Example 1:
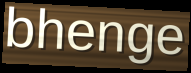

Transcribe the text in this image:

bhenge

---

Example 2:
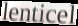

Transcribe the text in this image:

lenticel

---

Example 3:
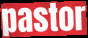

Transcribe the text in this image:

pastor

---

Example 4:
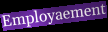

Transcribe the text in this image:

Employaement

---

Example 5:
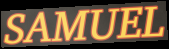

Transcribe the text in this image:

SAMUEL